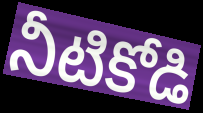
నీటికోడి